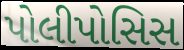
પોલીપોસિસ